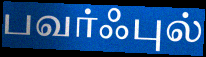
பவர்ஃபுல்